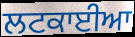
ਲਟਕਾਈਆ